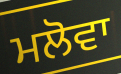
ਮਲੋਵਾ